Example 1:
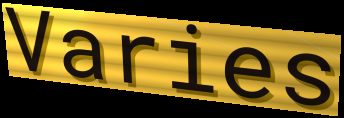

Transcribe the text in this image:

Varies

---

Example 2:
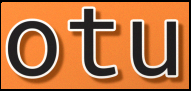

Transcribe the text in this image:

otu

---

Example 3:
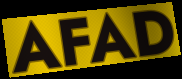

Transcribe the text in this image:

AFAD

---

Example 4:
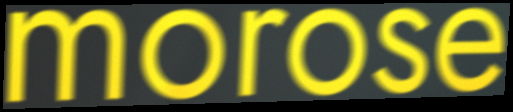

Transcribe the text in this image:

morose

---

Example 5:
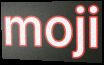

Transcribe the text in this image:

moji